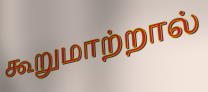
கூறுமாற்றால்